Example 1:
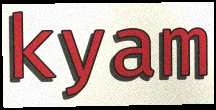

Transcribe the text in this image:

kyam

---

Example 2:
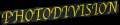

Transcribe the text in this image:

PHOTODIVISION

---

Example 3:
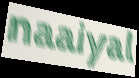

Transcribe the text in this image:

naaiyal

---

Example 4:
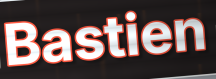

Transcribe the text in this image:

Bastien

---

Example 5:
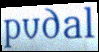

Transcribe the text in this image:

pudal